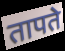
तापते